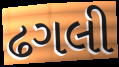
ઢગલી